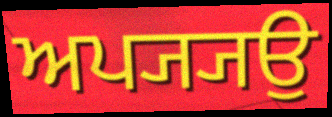
ਅਪ੍ਯ੍ਯਉ